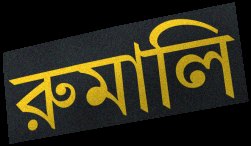
রুমালি